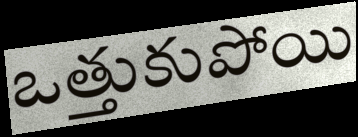
ఒత్తుకుపోయి